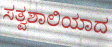
ಸತ್ವಶಾಲಿಯಾದ